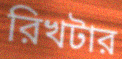
রিখটার